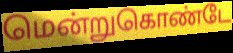
மென்றுகொண்டே